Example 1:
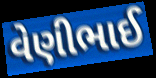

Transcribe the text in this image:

વેણીભાઈ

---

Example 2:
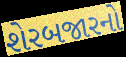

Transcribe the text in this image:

શેરબજારનો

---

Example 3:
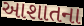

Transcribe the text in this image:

આશાતના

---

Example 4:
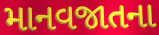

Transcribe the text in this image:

માનવજાતના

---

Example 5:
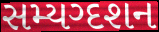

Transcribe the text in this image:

સમ્યગ્દશન